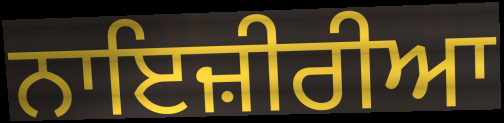
ਨਾਇਜ਼ੀਰੀਆ